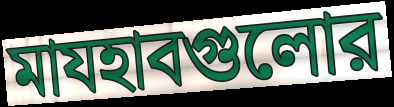
মাযহাবগুলোর